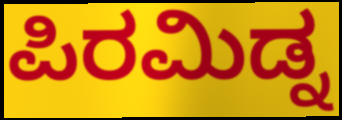
ಪಿರಮಿಡ್ನ